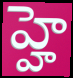
హ్హె